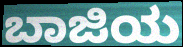
ಬಾಜಿಯ